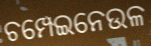
ଚମ୍ପେଇନେଉଳ